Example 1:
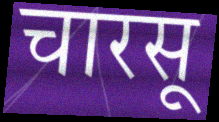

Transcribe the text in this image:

चारसू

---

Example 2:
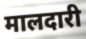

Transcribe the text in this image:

मालदारी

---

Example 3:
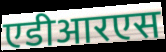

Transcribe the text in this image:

एडीआरएस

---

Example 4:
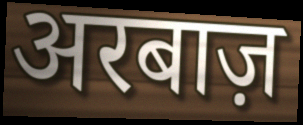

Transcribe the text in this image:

अरबाज़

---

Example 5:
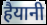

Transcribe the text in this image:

हैयानी